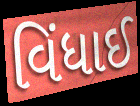
વિંધાઈ